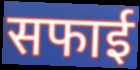
सफाई